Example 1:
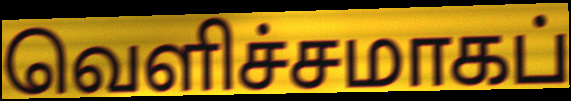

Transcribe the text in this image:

வெளிச்சமாகப்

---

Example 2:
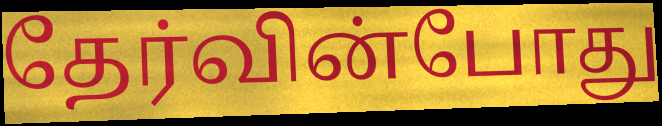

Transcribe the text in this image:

தேர்வின்போது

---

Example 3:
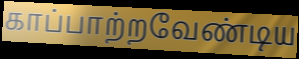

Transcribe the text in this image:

காப்பாற்றவேண்டிய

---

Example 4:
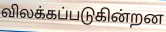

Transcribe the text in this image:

விலக்கப்படுகின்றன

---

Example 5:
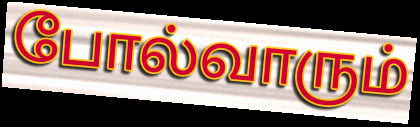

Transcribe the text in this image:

போல்வாரும்